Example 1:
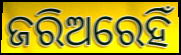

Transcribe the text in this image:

ଜରିଅରେହିଁ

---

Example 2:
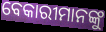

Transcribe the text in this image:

ବେକାରୀମାନଙ୍କୁ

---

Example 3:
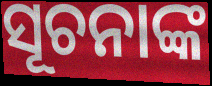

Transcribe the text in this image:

ସୂଚନାଙ୍କ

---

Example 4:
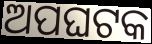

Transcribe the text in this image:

ଅପଘଟକ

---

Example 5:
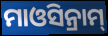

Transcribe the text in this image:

ମାଓସିନ୍ରାମ୍